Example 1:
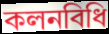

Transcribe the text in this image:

কলনবিধি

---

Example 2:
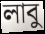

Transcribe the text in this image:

লাবু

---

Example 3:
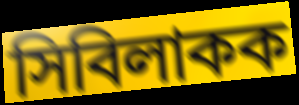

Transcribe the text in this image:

সিবিলাকক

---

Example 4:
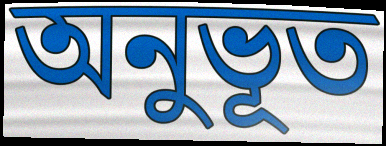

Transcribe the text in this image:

অনুভূত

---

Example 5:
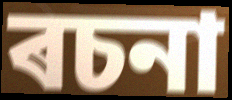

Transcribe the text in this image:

ৰচনা